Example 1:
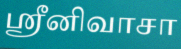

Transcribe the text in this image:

ஸ்ரீனிவாசா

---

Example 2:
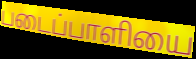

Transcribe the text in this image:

படைப்பாளியை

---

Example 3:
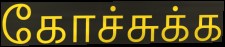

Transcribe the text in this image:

கோச்சுக்க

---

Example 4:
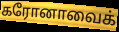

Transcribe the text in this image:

கரோனாவைக்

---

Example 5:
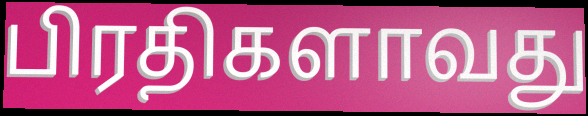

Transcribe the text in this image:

பிரதிகளாவது